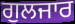
ਗੁਲਜਾਰ